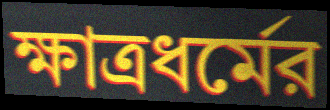
ক্ষাত্রধর্মের